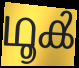
ഥൂൿ